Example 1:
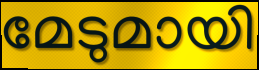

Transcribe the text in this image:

മേടുമായി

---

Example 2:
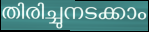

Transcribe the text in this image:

തിരിച്ചുനടക്കാം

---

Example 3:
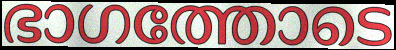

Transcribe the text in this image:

ഭാഗത്തോടെ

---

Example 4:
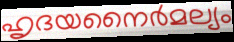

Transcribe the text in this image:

ഹൃദയനൈർമല്യം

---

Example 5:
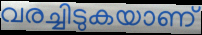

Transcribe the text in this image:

വരച്ചിടുകയാണ്